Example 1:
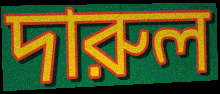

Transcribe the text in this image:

দারুল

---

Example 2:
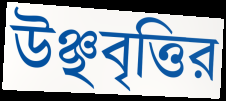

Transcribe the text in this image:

উঞ্ছবৃত্তির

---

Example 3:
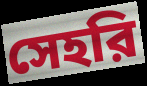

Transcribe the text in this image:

সেহরি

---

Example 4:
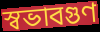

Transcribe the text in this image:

স্বভাবগুণ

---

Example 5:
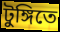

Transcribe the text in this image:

টুঙ্গিতে